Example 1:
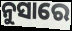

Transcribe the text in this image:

ନୁସାରେ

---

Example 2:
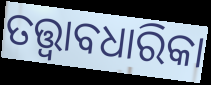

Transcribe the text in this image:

ତତ୍ତ୍ୱାବଧାରିକା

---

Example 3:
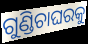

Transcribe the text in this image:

ଗୁଣ୍ଡିଚାଘରକୁ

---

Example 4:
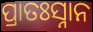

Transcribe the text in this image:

ପ୍ରାତଃସ୍ନାନ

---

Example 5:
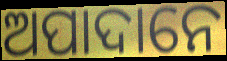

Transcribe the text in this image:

ଅପାଦାନେ